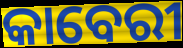
କାବେରୀ